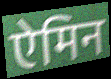
ऐमिन